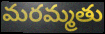
మరమ్మతు